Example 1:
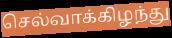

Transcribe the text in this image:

செல்வாக்கிழந்து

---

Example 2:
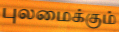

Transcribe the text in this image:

புலமைக்கும்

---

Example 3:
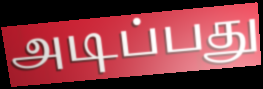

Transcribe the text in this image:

அடிப்பது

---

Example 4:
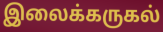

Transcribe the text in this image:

இலைக்கருகல்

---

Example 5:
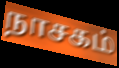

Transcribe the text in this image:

நாசகம்